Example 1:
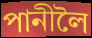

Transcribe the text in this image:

পানীলৈ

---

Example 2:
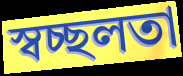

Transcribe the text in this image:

স্বচ্ছলতা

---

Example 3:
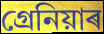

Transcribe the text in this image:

গ্ৰেনিয়াৰ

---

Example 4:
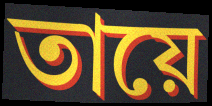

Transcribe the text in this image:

তায়ে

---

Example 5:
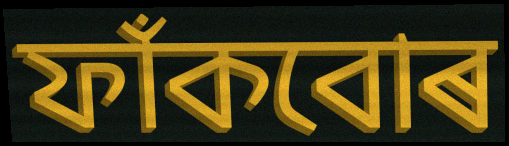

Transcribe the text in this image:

ফাঁকবোৰ